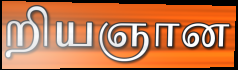
றியஞான